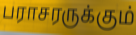
பராசரருக்கும்